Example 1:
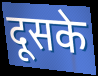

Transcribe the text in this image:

दूसके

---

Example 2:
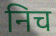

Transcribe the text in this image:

निच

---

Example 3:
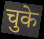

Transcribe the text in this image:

चुके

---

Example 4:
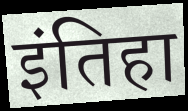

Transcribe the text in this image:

इंतिहा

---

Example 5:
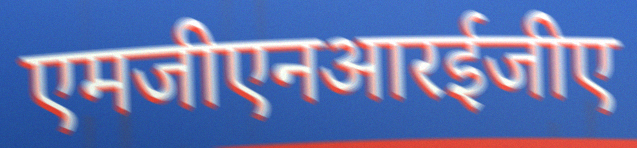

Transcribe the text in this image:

एमजीएनआरईजीए